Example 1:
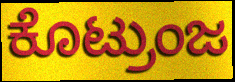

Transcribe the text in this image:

ಕೊಟ್ರುಂಜ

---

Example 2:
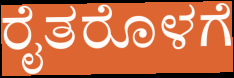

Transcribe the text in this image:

ರೈತರೊಳಗೆ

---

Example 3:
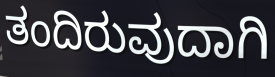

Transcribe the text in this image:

ತಂದಿರುವುದಾಗಿ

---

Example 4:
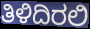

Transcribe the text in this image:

ತಿಳಿದಿರಲಿ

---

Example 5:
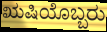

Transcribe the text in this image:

ಋಷಿಯೊಬ್ಬರು